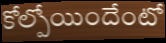
కోల్పోయిందేంటో